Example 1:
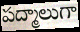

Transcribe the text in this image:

పద్మాలుగా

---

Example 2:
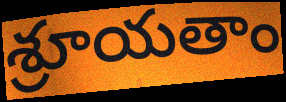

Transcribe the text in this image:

శ్రూయతాం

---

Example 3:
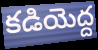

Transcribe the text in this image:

కడియెద్ద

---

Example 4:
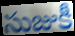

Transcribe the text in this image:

సుజుకీ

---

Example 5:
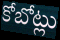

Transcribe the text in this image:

కోబోట్లు